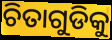
ଚିତାଗୁଡିକୁ